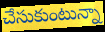
చేసుకుంటున్నా